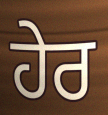
ਹੇਰ